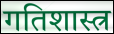
गतिशास्त्र